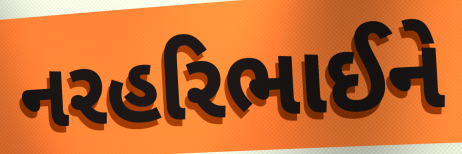
નરહરિભાઈને